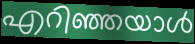
എറിഞ്ഞയാൾ